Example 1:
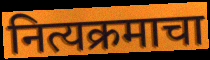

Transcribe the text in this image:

नित्यक्रमाचा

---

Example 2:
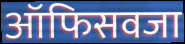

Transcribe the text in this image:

ऑफिसवजा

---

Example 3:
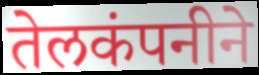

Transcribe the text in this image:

तेलकंपनीने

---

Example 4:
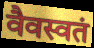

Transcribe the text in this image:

वैवस्वतं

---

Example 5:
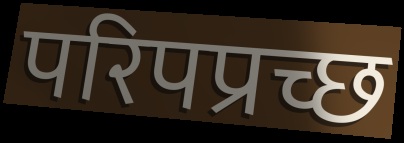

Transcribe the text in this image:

परिपप्रच्छ